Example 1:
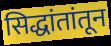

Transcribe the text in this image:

सिद्धांतांतून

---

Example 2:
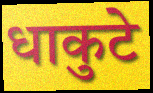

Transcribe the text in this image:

धाकुटे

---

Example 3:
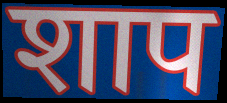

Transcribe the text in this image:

शाप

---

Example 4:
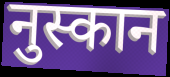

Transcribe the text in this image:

नुस्कान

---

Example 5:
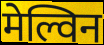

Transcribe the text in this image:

मेल्विन